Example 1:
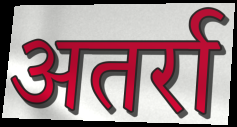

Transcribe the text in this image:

अतर्रा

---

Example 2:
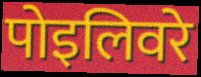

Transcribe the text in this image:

पोइलिवरे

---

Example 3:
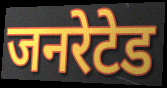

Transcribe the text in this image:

जनरेटेड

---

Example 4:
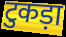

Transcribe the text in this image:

टुकड़ा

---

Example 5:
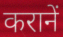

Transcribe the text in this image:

करानें